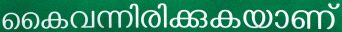
കൈവന്നിരിക്കുകയാണ്